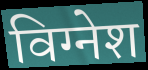
विग्‍नेश